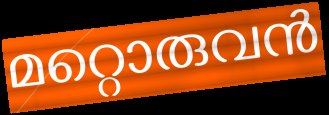
മറ്റൊരുവൻ